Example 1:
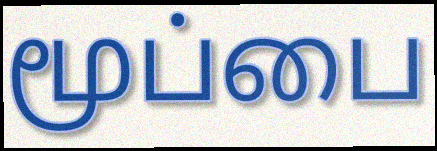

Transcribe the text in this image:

மூப்பை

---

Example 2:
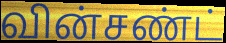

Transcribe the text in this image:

வின்சண்ட்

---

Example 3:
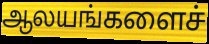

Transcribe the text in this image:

ஆலயங்களைச்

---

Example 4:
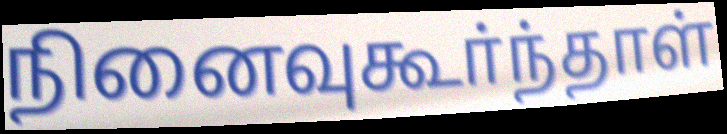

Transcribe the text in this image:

நினைவுகூர்ந்தாள்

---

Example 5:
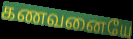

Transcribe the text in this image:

கணவனையே